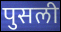
पुसली